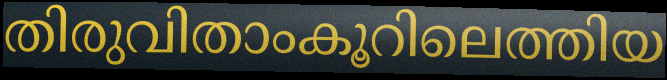
തിരുവിതാംകൂറിലെത്തിയ